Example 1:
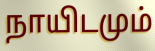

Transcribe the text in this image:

நாயிடமும்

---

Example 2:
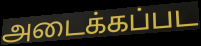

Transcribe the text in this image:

அடைக்கப்பட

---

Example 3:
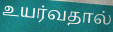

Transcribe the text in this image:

உயர்வதால்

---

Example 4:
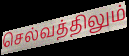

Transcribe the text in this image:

செல்வத்திலும்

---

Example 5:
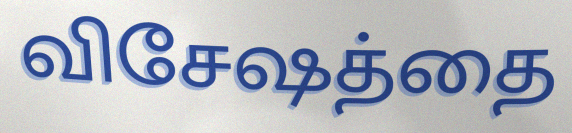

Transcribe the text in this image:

விசேஷத்தை